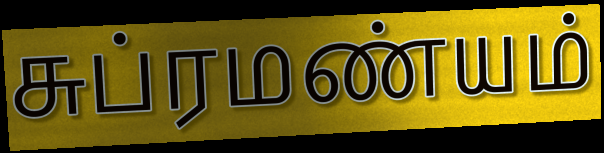
சுப்ரமண்யம்